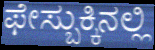
ಫೇಸ್ಬುಕ್ಕಿನಲ್ಲಿ